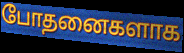
போதனைகளாக